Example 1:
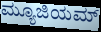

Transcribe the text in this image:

ಮ್ಯೂಜಿಯಮ್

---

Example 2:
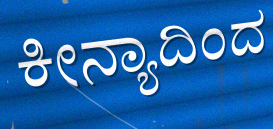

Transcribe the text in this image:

ಕೀನ್ಯಾದಿಂದ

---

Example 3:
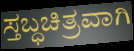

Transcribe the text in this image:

ಸ್ತಬ್ಧಚಿತ್ರವಾಗಿ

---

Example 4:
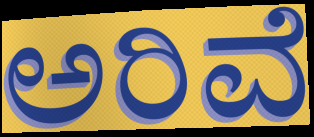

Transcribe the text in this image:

ಅರಿವೆ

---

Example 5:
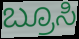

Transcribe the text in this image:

ಬ್ರೂಸಿ